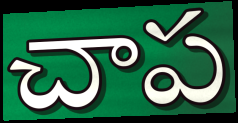
చాప